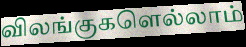
விலங்குகளெல்லாம்